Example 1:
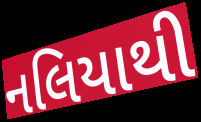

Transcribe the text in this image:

નલિયાથી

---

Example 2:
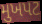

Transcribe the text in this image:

મુખપટ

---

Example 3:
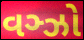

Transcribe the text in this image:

વઞ્ઝો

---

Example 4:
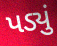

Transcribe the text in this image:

પડ્યું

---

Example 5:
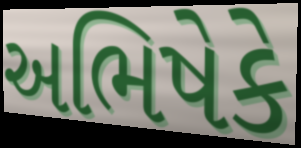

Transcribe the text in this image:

અભિષેકે